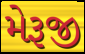
મેરૂજી